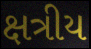
ક્ષત્રીય